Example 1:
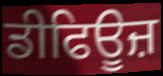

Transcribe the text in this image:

ਡੀਫਿਊਜ਼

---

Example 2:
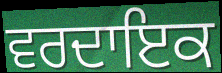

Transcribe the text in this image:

ਵਰਦਾਇਕ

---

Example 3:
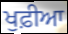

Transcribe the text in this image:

ਖੁਫ਼ੀਆ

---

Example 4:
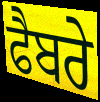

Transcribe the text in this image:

ਫੈਬਰੇ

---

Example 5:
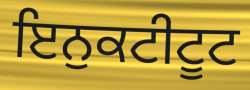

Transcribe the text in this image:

ਇਨੁਕਟੀਟੂਟ